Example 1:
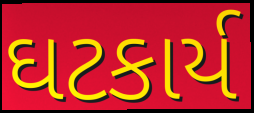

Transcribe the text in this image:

ઘટકાર્ય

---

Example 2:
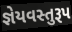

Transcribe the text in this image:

જ્ઞેયવસ્તુરૂપ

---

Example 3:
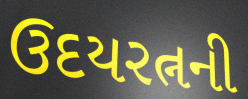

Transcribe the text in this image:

ઉદયરત્નની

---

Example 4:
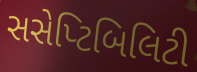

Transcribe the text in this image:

સસેપ્ટિબિલિટી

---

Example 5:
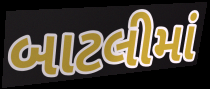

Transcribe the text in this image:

બાટલીમાં